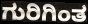
ಗುರಿಗಿಂತ